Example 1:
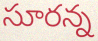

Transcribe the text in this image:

సూరన్న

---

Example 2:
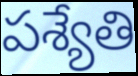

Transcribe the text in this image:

పశ్యేతి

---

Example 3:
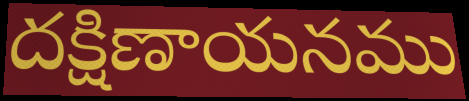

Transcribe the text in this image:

దక్షిణాయనము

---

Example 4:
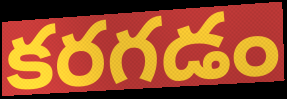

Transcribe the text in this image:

కరగడం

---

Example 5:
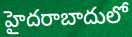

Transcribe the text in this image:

హైదరాబాదులో